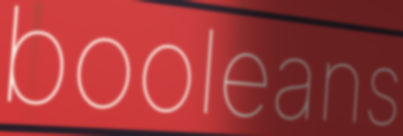
booleans